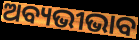
ଅବ୍ୟଭୀଭାବ